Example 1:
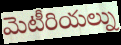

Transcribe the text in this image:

మెటీరియల్ను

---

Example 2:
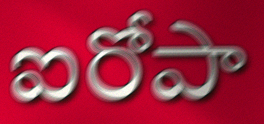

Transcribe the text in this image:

ఐరోపా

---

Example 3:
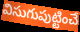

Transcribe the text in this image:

విసుగుపుట్టించే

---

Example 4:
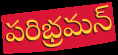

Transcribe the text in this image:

పరిభ్రమన్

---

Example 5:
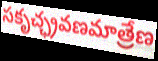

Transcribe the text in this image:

సకృచ్ఛ్రవణమాత్రేణ